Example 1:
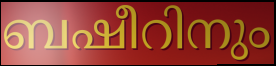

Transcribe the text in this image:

ബഷീറിനും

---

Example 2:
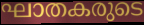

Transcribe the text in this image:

ഘാതകരുടെ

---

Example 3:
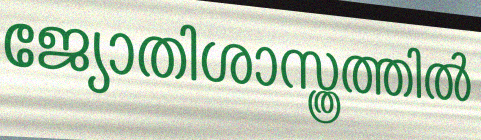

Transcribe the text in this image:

ജ്യോതിശാസ്ത്രത്തിൽ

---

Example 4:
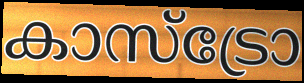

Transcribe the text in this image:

കാസ്ട്രോ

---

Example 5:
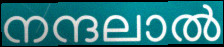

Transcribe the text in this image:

നന്ദലാൽ